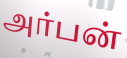
அர்பன்